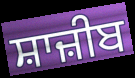
ਸ਼ਾਜ਼ੀਬ